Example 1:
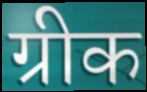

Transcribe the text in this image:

ग्रीक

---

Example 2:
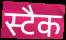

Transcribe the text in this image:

स्टैक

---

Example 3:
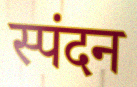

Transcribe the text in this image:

स्पंदन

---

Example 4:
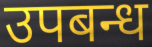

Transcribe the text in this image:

उपबन्ध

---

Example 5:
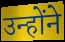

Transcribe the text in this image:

उन्होंने